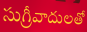
సుగ్రీవాదులతో